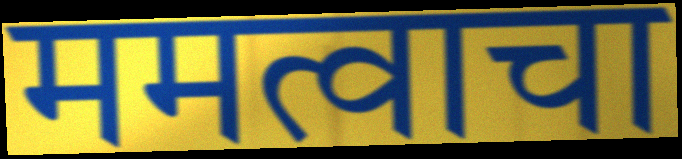
ममत्वाचा